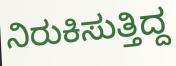
ನಿರುಕಿಸುತ್ತಿದ್ದ